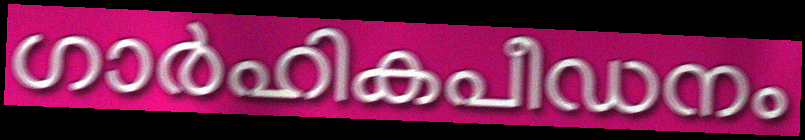
ഗാർഹികപീഡനം